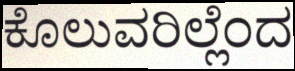
ಕೊಲುವರಿಲ್ಲೆಂದ